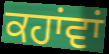
ਕਹਾਂਵਾਂ